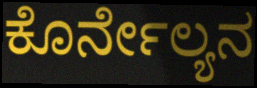
ಕೊರ್ನೇಲ್ಯನ